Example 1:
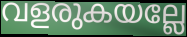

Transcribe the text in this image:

വളരുകയല്ലേ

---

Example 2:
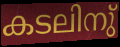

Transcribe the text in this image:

കടലിനു്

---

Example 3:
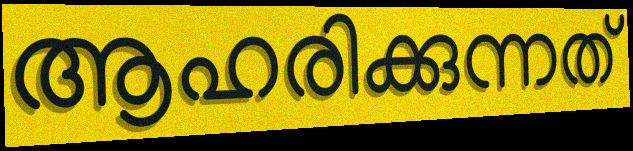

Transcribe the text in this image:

ആഹരിക്കുന്നത്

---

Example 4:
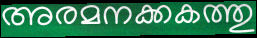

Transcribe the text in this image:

അരമനക്കകത്തു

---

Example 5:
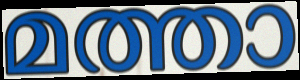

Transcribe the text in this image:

മത്താ